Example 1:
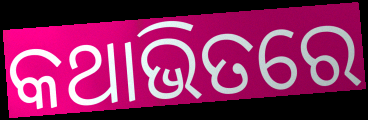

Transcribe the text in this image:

କଥାଭିତରେ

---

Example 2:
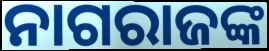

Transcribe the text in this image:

ନାଗରାଜଙ୍କ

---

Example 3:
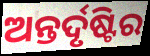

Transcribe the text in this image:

ଅନ୍ତର୍ଦୃଷ୍ଟିର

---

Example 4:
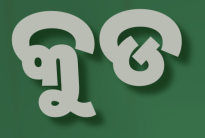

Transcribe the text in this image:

କୁଡ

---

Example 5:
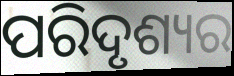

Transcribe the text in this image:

ପରିଦୃଶ୍ୟର